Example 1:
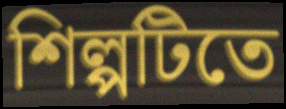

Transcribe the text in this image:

শিল্পটিতে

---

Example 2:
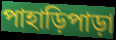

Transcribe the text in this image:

পাহাড়িপাড়া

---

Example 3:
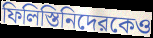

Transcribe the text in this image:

ফিলিস্তিনিদেরকেও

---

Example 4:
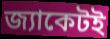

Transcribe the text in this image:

জ্যাকেটই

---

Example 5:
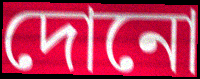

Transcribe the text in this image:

দোনো